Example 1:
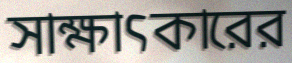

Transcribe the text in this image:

সাক্ষাৎকারের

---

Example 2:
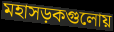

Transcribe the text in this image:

মহাসড়কগুলোয়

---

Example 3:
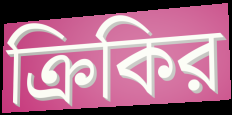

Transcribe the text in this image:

ক্রিকির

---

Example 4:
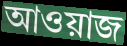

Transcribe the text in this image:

আওয়াজ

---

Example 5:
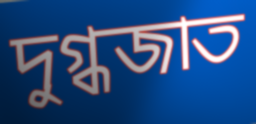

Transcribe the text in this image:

দুগ্ধজাত